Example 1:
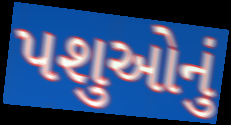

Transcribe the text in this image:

પશુઓનું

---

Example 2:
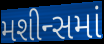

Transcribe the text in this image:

મશીન્સમાં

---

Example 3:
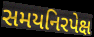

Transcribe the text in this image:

સમયનિરપેક્ષ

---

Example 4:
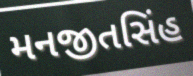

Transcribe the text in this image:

મનજીતસિંહ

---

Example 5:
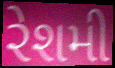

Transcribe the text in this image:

રેશમી